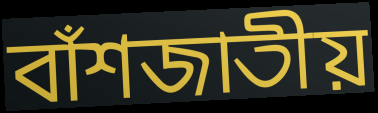
বাঁশজাতীয়